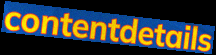
contentdetails